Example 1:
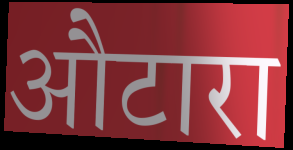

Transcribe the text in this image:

औटारा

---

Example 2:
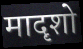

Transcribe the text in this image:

मादृशो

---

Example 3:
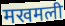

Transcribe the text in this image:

मखमली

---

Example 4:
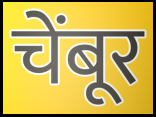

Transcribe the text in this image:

चेंबूर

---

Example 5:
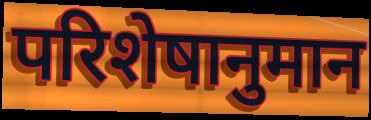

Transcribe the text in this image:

परिशेषानुमान